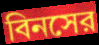
বিনসের